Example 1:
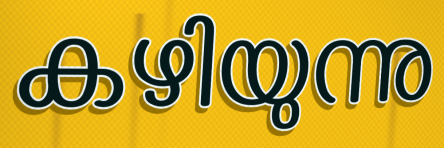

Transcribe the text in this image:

കഴിയുന്നു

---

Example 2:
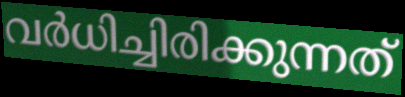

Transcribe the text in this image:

വർധിച്ചിരിക്കുന്നത്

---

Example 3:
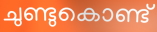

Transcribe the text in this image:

ചുണ്ടുകൊണ്ട്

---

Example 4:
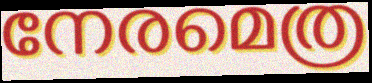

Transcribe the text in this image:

നേരമെത്ര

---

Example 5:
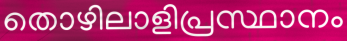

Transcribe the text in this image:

തൊഴിലാളിപ്രസ്ഥാനം